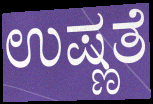
ಉಷ್ಣತೆ